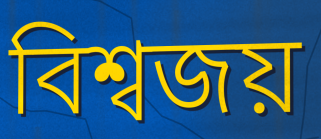
বিশ্বজয়